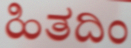
ಹಿತದಿಂ